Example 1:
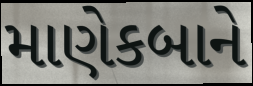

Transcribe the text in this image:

માણેકબાને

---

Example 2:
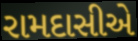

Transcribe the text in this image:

રામદાસીએ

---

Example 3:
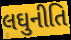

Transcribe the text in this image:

લઘુનીતિ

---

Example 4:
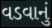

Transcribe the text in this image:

વડવાનું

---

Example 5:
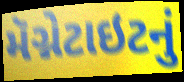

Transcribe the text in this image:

મૅગ્નેટાઇટનું